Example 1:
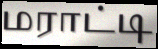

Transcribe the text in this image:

மராட்டி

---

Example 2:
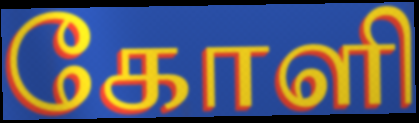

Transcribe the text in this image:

கோளி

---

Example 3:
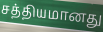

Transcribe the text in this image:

சத்தியமானது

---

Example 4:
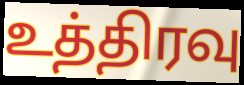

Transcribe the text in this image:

உத்திரவு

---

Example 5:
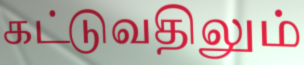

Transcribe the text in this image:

கட்டுவதிலும்